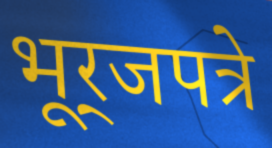
भूर्जपत्रे